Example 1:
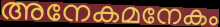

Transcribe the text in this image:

അനേകമനേകം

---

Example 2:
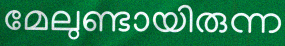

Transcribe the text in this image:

മേലുണ്ടായിരുന്ന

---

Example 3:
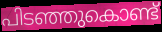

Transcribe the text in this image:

പിടഞ്ഞുകൊണ്ട്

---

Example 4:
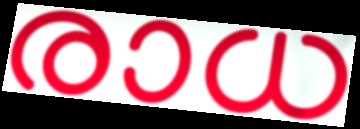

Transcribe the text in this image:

രാധ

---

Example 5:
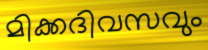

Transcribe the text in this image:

മിക്കദിവസവും